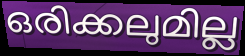
ഒരിക്കലുമില്ല